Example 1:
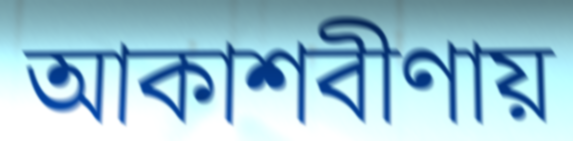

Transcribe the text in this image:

আকাশবীণায়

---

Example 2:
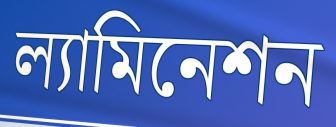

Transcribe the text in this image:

ল্যামিনেশন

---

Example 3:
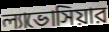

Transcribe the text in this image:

ল্যাভোসিয়ার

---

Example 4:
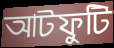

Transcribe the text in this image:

আটফুটি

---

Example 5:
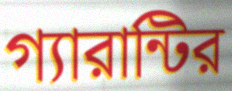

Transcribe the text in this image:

গ্যারান্টির